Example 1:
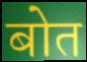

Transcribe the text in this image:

बोत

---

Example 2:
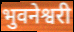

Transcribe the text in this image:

भुवनेश्वरी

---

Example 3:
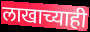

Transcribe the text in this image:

लाखाच्याही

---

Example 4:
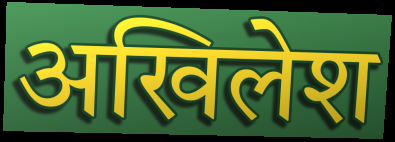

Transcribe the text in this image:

अखिलेश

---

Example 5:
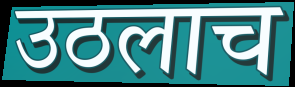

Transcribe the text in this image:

उठलाच